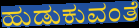
ಹುಡುಕುವಂತೆ